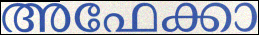
അഫേക്കാ